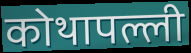
कोथापल्ली